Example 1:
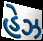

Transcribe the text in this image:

હેઝ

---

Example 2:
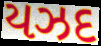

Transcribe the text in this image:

યઝદ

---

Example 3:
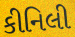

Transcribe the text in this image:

કીનિલી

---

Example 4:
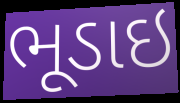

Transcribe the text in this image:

ભૂડાઇ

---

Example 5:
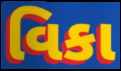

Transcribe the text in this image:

વિકા